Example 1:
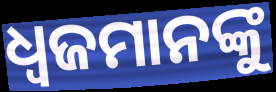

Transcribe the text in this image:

ଧ୍ୱଜମାନଙ୍କୁ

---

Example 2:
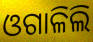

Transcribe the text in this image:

ଓଗାଳିଲି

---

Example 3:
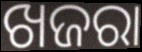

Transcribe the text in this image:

ଖଜରା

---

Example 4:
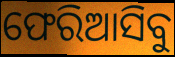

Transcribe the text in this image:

ଫେରିଆସିବୁ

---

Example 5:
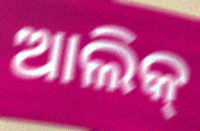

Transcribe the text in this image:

ଆଲିକ୍